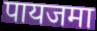
पायजमा